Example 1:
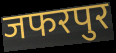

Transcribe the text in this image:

जफरपुर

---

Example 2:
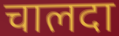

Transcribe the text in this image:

चालदा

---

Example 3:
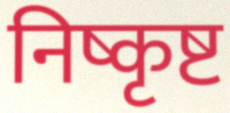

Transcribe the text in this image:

निष्कृष्ट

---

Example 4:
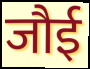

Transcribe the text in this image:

जौई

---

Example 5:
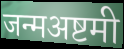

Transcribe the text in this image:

जन्मअष्टमी